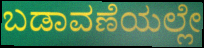
ಬಡಾವಣೆಯಲ್ಲೇ